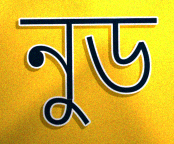
নুড